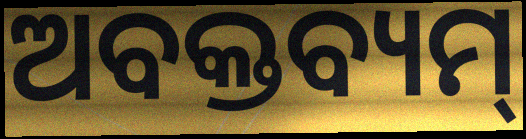
ଅବକ୍ତବ୍ୟମ୍